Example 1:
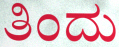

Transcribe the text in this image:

ತಿಂದು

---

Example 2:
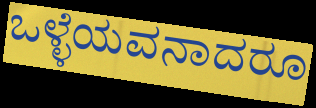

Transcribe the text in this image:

ಒಳ್ಳೆಯವನಾದರೂ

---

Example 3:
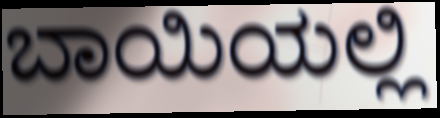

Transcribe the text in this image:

ಬಾಯಿಯಲ್ಲಿ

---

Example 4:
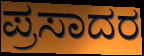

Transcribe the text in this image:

ಪ್ರಸಾದರ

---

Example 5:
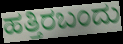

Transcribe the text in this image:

ಹತ್ತಿರಬಂದು